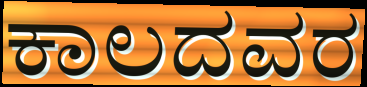
ಕಾಲದವರ